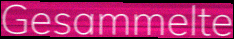
Gesammelte